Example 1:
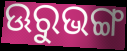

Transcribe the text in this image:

ଊରୁଭଙ୍ଗ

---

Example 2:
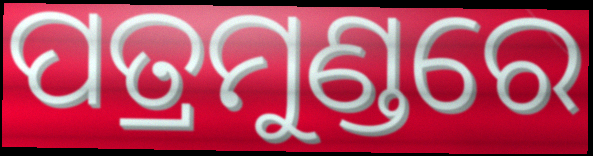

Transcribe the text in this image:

ପତ୍ରମୁଣ୍ଡରେ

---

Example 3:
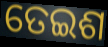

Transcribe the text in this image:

ତେଇଶ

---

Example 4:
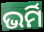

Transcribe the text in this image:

ଭର୍ମି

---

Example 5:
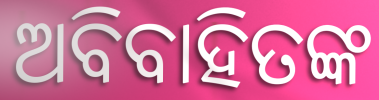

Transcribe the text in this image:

ଅବିବାହିତଙ୍କ